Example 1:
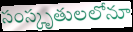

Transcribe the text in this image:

సంస్కృతులలోనూ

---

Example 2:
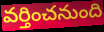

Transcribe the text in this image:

వర్తించనుంది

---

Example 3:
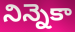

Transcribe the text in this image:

నిన్నెకా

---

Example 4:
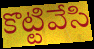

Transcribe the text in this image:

కొట్టివేసి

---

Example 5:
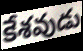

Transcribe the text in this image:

కేశవుడు